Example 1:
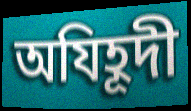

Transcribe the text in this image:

অযিহূদী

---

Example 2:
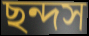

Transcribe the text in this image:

ছন্দস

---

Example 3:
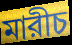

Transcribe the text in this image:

মারীচ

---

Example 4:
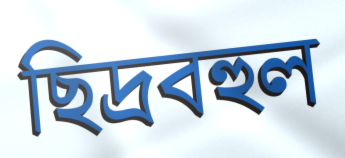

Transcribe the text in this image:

ছিদ্রবহুল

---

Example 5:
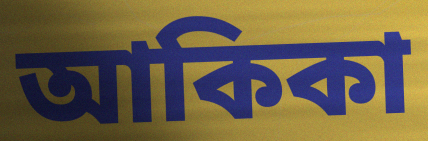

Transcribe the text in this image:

আকিকা